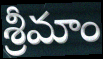
శ్రీమాం